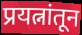
प्रयत्नांतून